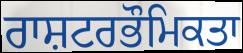
ਰਾਸ਼ਟਰਭੌਮਿਕਤਾ